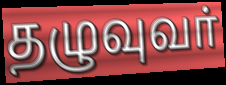
தழுவுவர்